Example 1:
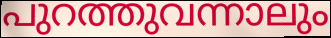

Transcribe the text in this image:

പുറത്തുവന്നാലും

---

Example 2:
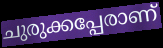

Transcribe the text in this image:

ചുരുക്കപ്പേരാണ്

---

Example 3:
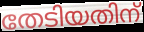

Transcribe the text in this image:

തേടിയതിന്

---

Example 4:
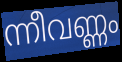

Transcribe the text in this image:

ന്നീവണ്ണം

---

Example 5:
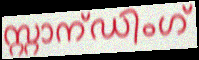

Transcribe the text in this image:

സ്റ്റാന്ഡിംഗ്